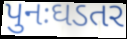
પુનઃઘડતર